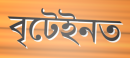
বৃটেইনত